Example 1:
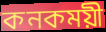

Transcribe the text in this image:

কনকময়ী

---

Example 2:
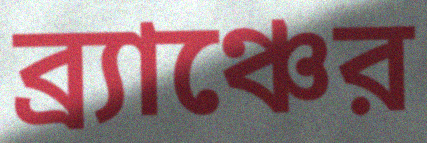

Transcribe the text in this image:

ব্র্যাঞ্চের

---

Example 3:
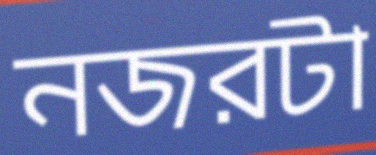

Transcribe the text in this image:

নজরটা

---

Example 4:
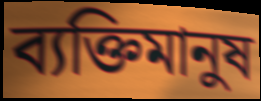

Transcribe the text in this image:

ব্যক্তিমানুষ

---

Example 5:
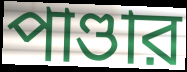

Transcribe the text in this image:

পাণ্ডার